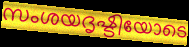
സംശയദൃഷ്ടിയോടെ